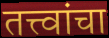
तत्त्वांचा